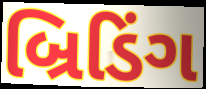
બ્રિડિંગ